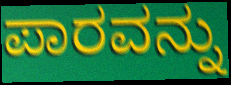
ಪಾರವನ್ನು